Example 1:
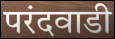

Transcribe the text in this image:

परंदवाडी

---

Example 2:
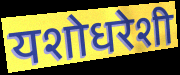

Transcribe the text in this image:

यशोधरेशी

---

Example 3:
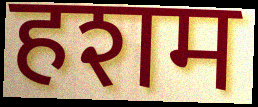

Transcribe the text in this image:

हशम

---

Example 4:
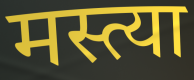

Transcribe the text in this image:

मस्त्या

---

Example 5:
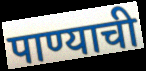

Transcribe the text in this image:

पाण्याची